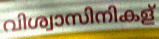
വിശ്വാസിനികള്